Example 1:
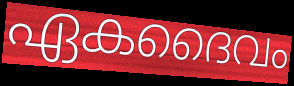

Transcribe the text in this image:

ഏകദൈവം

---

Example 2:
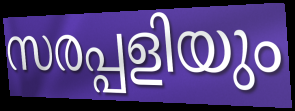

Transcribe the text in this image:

സരപ്പളിയും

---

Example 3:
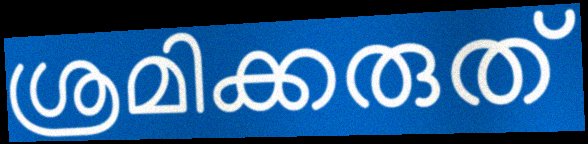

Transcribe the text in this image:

ശ്രമിക്കരുത്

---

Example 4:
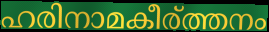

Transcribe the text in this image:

ഹരിനാമകീര്ത്തനം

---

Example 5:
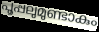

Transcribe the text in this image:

പൂപ്പലുമുണ്ടാകും